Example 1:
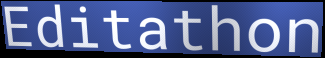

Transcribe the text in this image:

Editathon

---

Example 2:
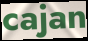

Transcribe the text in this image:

cajan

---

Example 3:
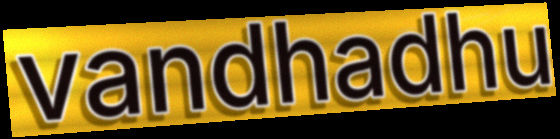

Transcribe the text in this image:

vandhadhu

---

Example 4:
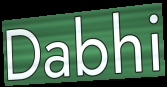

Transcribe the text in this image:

Dabhi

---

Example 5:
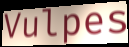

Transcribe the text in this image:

Vulpes